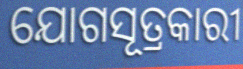
ଯୋଗସୂତ୍ରକାରୀ